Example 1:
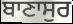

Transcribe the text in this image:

ਬਾਣਾਸੁਰ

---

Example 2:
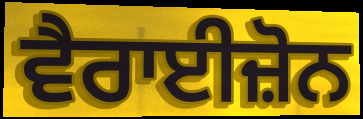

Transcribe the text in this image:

ਵੈਰਾਈਜ਼ੋਨ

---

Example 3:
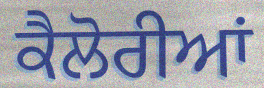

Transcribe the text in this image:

ਕੈਲੋਰੀਆਂ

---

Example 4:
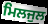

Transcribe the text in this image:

ਮਿਲਜੁਲ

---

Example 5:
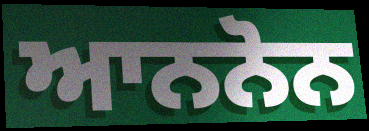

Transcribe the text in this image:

ਆਨਨੋਨ